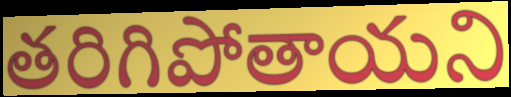
తరిగిపోతాయని